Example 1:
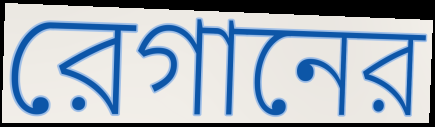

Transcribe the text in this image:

রেগানের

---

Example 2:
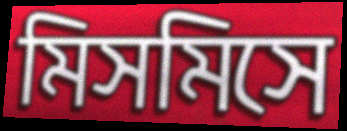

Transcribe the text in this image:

মিসমিসে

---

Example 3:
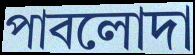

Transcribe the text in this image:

পাবলোদা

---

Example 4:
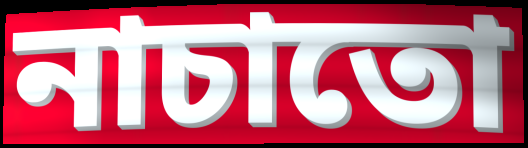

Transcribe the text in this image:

নাচাতো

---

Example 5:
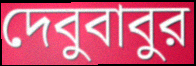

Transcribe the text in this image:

দেবুবাবুর